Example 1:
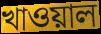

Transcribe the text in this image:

খাওয়াল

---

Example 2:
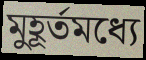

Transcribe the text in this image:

মুহূর্তমধ্যে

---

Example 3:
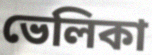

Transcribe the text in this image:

ভেলিকা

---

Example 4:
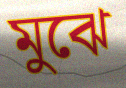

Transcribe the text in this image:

মুঝে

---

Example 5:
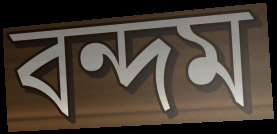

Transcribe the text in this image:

বন্দম